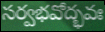
సర్వభవోద్భవః